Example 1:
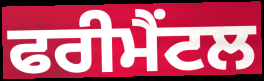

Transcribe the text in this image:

ਫਰੀਮੈਂਟਲ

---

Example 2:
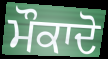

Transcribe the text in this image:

ਮੌਕਾਦੋ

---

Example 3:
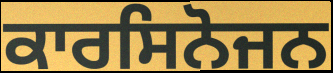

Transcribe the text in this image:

ਕਾਰਸਿਨੋਜਨ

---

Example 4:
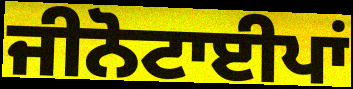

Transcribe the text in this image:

ਜੀਨੋਟਾਈਪਾਂ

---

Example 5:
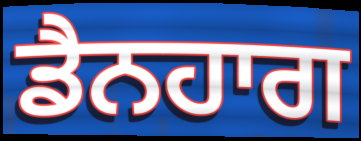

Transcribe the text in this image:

ਡੈਨਹਾਗ